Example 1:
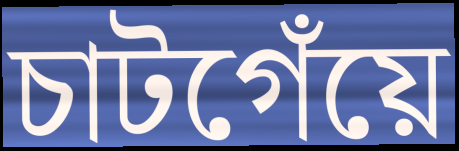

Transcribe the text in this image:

চাটগেঁয়ে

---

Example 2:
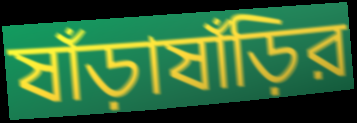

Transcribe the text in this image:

ষাঁড়াষাঁড়ির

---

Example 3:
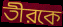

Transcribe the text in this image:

তীরকে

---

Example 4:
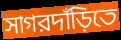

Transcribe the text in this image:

সাগরদাঁড়িতে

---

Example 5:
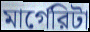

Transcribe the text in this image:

মার্গেরিটা